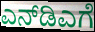
ಎನ್‌ಡಿಎಗೆ